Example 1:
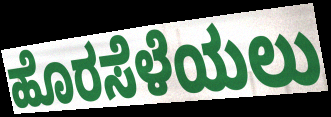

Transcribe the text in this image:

ಹೊರಸೆಳೆಯಲು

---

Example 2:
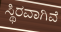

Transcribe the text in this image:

ಸ್ಥಿರವಾಗಿವೆ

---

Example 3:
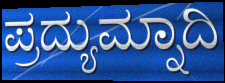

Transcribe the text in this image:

ಪ್ರದ್ಯುಮ್ನಾದಿ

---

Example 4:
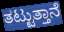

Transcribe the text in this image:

ತಟ್ಟುತ್ತಾನೆ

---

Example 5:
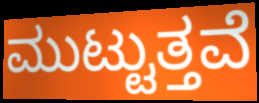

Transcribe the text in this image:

ಮುಟ್ಟುತ್ತವೆ